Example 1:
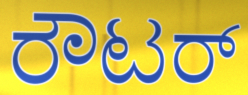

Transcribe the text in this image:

ರೌಟರ್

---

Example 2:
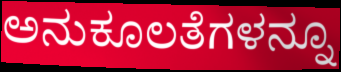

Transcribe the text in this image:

ಅನುಕೂಲತೆಗಳನ್ನೂ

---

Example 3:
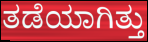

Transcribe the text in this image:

ತಡೆಯಾಗಿತ್ತು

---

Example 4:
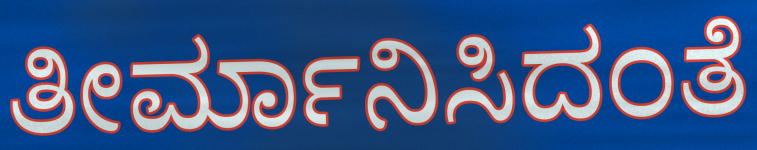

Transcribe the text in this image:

ತೀರ್ಮಾನಿಸಿದಂತೆ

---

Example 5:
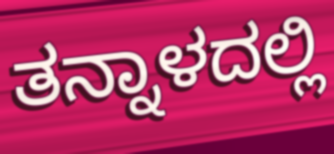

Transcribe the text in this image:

ತನ್ನಾಳದಲ್ಲಿ